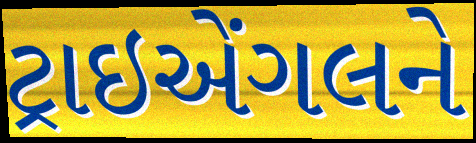
ટ્રાઇએંગલને